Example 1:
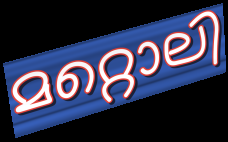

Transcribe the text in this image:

മറ്റൊലി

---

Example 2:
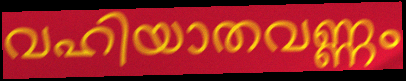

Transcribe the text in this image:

വഹിയാതവണ്ണം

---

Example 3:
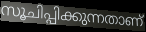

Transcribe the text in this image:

സൂചിപ്പിക്കുന്നതാണ്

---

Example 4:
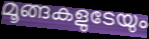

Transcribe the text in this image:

മൂങ്ങകളുടേയും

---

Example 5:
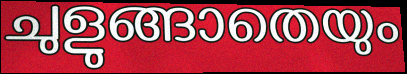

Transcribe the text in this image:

ചുളുങ്ങാതെയും